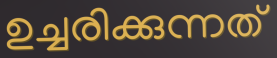
ഉച്ചരിക്കുന്നത്